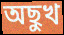
অছুখ